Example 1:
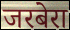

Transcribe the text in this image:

जरबेरा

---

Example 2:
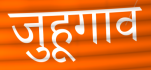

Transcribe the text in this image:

जुहूगाव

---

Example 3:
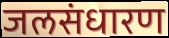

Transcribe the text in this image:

जलसंधारण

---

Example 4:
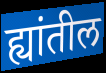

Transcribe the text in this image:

ह्यांतील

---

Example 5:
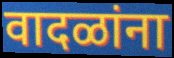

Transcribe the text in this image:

वादळांना